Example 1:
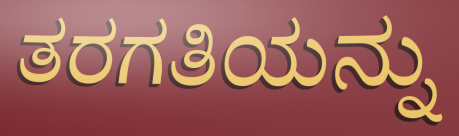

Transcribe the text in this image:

ತರಗತಿಯನ್ನು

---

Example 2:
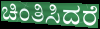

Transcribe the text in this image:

ಚಿಂತಿಸಿದರೆ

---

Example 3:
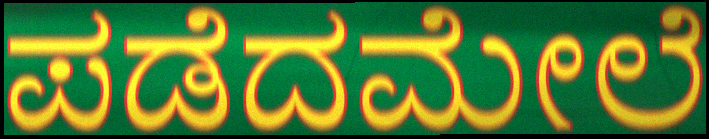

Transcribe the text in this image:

ಪಡೆದಮೇಲೆ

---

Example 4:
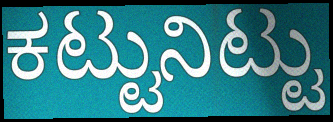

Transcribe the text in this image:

ಕಟ್ಟುನಿಟ್ಟು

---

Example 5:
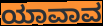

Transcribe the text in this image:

ಯಾವಾವ